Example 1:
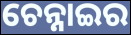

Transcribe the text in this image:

ଚେନ୍ନାଇର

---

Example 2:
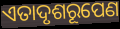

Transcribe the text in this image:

ଏତାଦୃଶରୂପେଣ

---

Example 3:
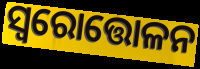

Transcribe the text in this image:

ସ୍ବରୋତ୍ତୋଳନ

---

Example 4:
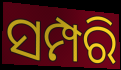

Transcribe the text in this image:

ସମ୍ପରି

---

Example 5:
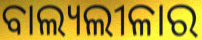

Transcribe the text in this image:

ବାଲ୍ୟଲୀଳାର